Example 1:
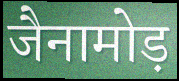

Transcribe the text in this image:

जैनामोड़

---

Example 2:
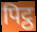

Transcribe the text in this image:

पिट्ठ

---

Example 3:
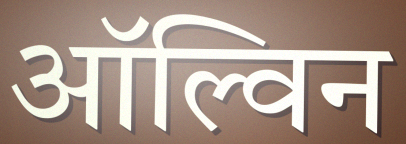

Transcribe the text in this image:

ऑल्विन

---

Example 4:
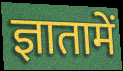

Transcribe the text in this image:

ज्ञातामें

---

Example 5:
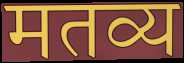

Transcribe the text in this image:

मतव्य